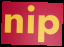
nip